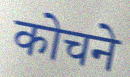
कोचने